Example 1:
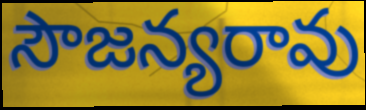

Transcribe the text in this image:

సౌజన్యరావు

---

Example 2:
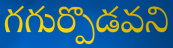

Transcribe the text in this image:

గగుర్పొడవని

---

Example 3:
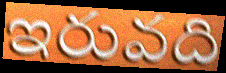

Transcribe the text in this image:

ఇరువది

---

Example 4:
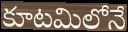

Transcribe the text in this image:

కూటమిలోనే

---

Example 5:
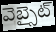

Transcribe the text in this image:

వెబ్సైట్